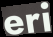
eri